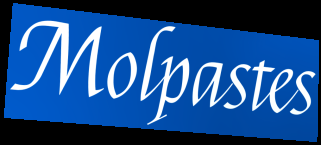
Molpastes